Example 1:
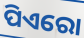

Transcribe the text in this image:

ପିଏରୋ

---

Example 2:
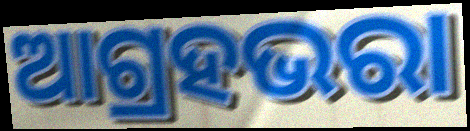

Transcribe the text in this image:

ଆଗ୍ରହଭରା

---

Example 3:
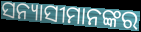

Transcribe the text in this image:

ସନ୍ୟାସୀମାନଙ୍କର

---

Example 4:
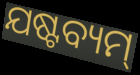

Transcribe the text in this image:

ଯଷ୍ଟବ୍ୟମ୍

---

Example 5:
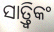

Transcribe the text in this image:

ସାତ୍ତ୍ୱିକଂ